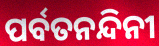
ପର୍ବତନନ୍ଦିନୀ